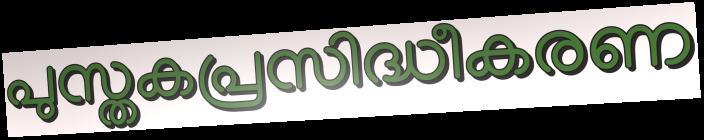
പുസ്തകപ്രസിദ്ധീകരണ